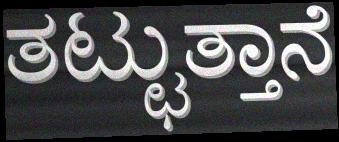
ತಟ್ಟುತ್ತಾನೆ